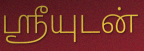
ஸ்ரீயுடன்